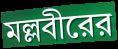
মল্লবীরের